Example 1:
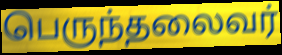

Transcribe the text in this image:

பெருந்தலைவர்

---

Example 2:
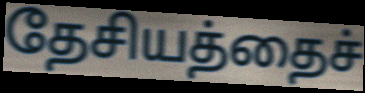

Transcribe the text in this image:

தேசியத்தைச்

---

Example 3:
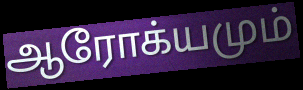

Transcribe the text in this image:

ஆரோக்யமும்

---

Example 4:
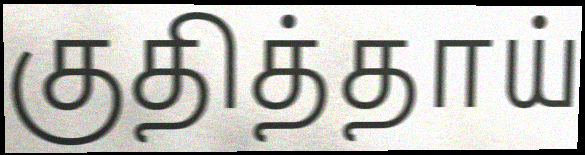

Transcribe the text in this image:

குதித்தாய்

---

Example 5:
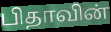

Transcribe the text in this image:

பிதாவின்